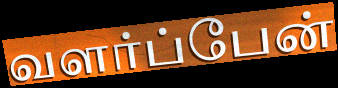
வளர்ப்பேன்